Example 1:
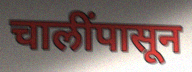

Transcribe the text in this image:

चालींपासून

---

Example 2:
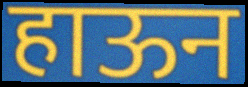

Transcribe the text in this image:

हाऊन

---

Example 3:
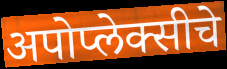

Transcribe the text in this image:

अपोप्लेक्सीचे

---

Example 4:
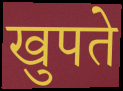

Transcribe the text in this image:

खुपते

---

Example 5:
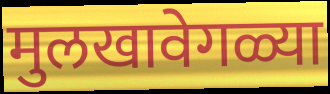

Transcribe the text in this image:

मुलखावेगळ्या